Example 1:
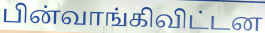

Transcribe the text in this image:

பின்வாங்கிவிட்டன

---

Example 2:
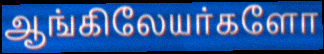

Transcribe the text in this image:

ஆங்கிலேயர்களோ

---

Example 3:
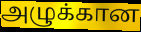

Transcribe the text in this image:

அழுக்கான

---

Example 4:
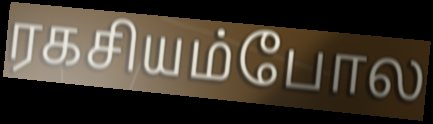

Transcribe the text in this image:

ரகசியம்போல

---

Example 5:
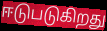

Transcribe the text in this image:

ஈடுபடுகிறது